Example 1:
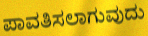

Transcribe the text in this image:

ಪಾವತಿಸಲಾಗುವುದು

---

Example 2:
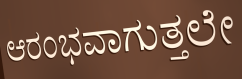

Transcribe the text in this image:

ಆರಂಭವಾಗುತ್ತಲೇ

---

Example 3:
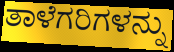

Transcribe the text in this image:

ತಾಳೆಗರಿಗಳನ್ನು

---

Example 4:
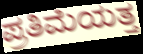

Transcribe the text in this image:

ಪ್ರತಿಮೆಯತ್ತ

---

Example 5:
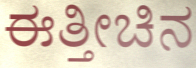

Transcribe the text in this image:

ಈತ್ತೀಚಿನ